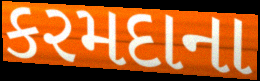
કરમદાના